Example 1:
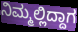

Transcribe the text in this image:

ನಿಮ್ಮಲ್ಲಿದ್ದಾಗ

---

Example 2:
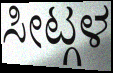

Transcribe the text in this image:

ಸೀಟ್ಗಳ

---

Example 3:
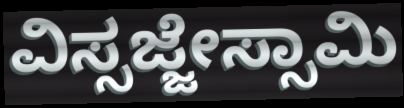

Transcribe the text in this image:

ವಿಸ್ಸಜ್ಜೇಸ್ಸಾಮಿ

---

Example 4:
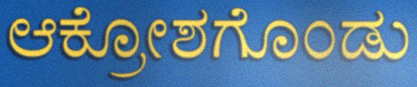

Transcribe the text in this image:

ಆಕ್ರೋಶಗೊಂಡು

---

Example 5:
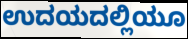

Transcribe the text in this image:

ಉದಯದಲ್ಲಿಯೂ